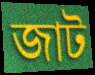
জাট